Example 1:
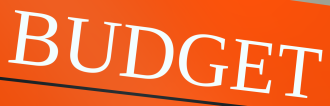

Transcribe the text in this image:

BUDGET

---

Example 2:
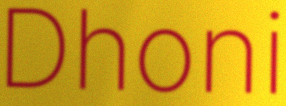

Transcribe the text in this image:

Dhoni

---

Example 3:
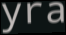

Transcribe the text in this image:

yra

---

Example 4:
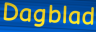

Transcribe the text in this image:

Dagblad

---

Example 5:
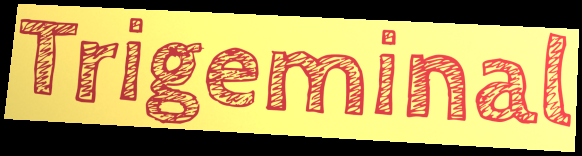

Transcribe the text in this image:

Trigeminal